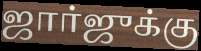
ஜார்ஜுக்கு